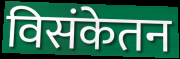
विसंकेतन